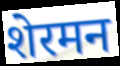
शेरमन